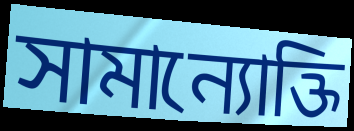
সামান্যোক্তি